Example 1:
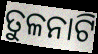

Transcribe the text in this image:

ତୁଳନାଟି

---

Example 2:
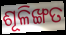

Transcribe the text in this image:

ଶୂଳିଙ୍ଖତ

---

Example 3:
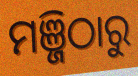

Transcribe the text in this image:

ମଞ୍ଜିଠାରୁ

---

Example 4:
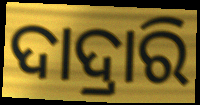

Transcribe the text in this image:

ଦାଦ୍ରାରି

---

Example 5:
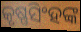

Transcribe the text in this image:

କୃଷ୍ଣସିଂହଙ୍କ